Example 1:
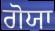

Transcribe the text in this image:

ਗੋਯਾ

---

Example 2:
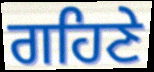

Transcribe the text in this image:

ਗਹਿਣੇ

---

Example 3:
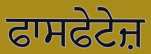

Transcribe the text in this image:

ਫਾਸਫੇਟੇਜ਼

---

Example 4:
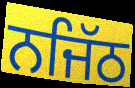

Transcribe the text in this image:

ਨਜਿੱਠ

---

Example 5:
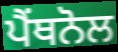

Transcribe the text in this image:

ਪੈਂਥਨੋਲ